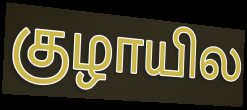
குழாயில